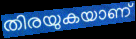
തിരയുകയാണ്